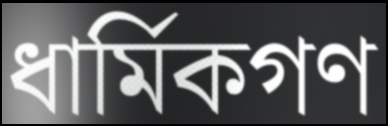
ধার্মিকগণ